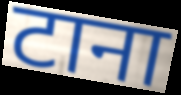
टाना